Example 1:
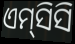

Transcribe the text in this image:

ଏମ୍‌ସିସି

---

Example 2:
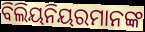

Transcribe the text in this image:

ବିଲିୟନିୟରମାନଙ୍କ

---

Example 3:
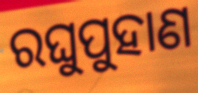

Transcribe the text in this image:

ରଘୁପୁହାଣ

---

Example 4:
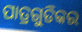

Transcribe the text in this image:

ପାତ୍ରଗୁଡିକର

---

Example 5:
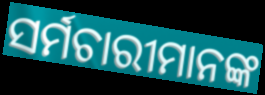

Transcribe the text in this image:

ସର୍ମଚାରୀମାନଙ୍କ